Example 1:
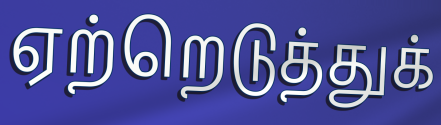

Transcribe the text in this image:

ஏற்றெடுத்துக்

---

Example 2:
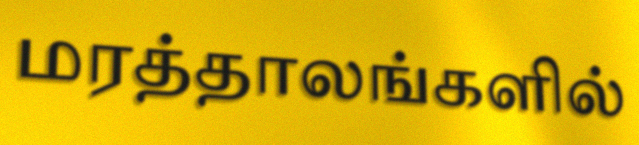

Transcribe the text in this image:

மரத்தாலங்களில்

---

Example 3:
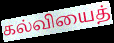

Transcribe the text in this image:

கல்வியைத்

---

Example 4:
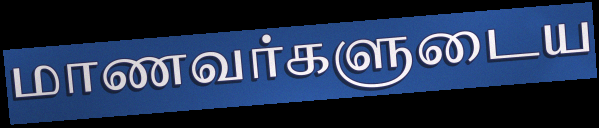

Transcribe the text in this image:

மாணவர்களுடைய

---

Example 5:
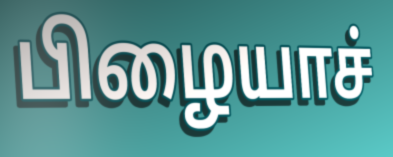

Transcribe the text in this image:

பிழையாச்